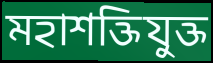
মহাশক্তিযুক্ত